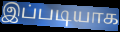
இப்படியாக